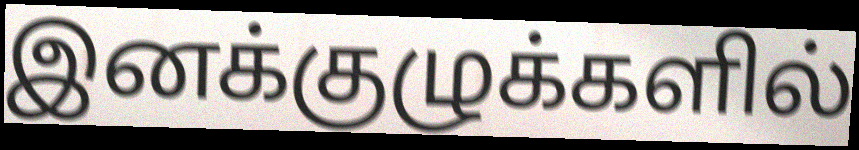
இனக்குழுக்களில்